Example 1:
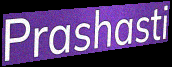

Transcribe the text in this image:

Prashasti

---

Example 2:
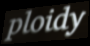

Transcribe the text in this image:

ploidy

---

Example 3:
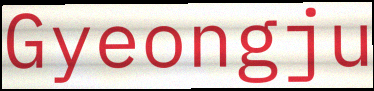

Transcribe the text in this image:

Gyeongju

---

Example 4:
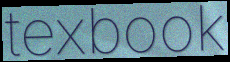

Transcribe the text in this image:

texbook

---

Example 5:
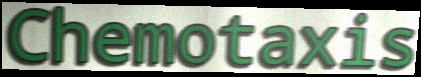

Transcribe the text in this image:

Chemotaxis